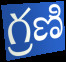
గ్రణి